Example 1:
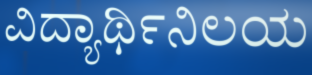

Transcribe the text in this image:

ವಿದ್ಯಾರ್ಥಿನಿಲಯ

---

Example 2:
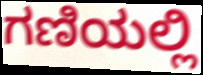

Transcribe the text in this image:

ಗಣಿಯಲ್ಲಿ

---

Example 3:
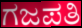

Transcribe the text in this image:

ಗಜಪತಿ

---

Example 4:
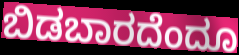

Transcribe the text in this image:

ಬಿಡಬಾರದೆಂದೂ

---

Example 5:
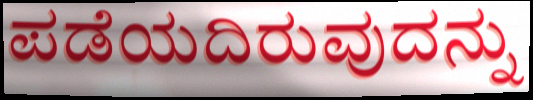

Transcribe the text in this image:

ಪಡೆಯದಿರುವುದನ್ನು